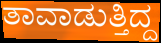
ತಾವಾಡುತ್ತಿದ್ದ